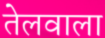
तेलवाला